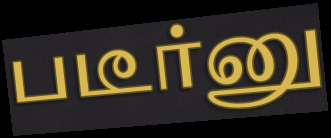
படீர்னு